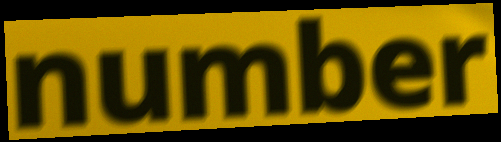
number